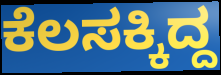
ಕೆಲಸಕ್ಕಿದ್ದ